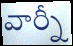
వార్నీ